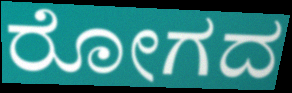
ರೋಗದ